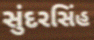
સુંદરસિંહ